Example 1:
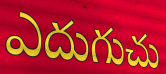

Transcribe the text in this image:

ఎదుగుచు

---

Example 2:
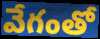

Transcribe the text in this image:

వేగంతో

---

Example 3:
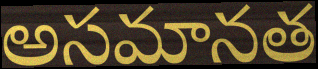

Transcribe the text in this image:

అసమానత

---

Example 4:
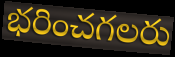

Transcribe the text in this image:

భరించగలరు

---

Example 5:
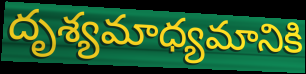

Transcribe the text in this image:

దృశ్యమాధ్యమానికి